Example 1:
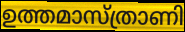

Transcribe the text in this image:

ഉത്തമാസ്ത്രാണി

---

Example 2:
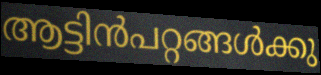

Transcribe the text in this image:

ആട്ടിൻപറ്റങ്ങൾക്കു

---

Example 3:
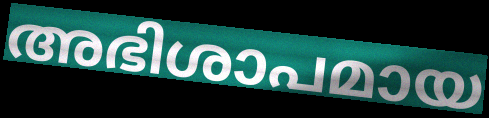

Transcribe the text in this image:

അഭിശാപമായ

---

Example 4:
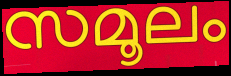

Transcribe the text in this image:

സമൂലം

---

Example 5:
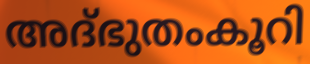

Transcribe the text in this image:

അദ്ഭുതംകൂറി